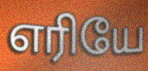
எரியே